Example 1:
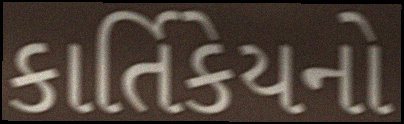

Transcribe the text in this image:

કાર્તિકેયનો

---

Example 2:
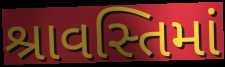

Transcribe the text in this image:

શ્રાવસ્તિમાં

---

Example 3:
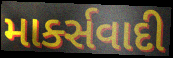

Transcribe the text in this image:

માર્ક્સવાદી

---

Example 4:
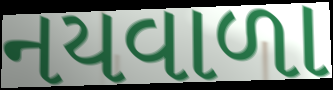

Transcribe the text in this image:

નયવાળા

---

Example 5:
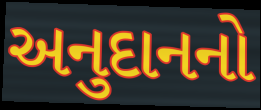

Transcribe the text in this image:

અનુદાનનો